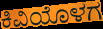
ಕಿವಿಯೊಳಗ